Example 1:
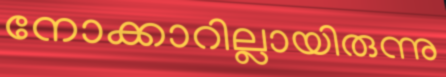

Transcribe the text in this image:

നോക്കാറില്ലായിരുന്നു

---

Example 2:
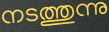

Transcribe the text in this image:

നടത്തുന്നു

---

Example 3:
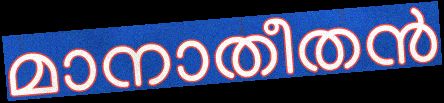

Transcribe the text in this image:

മാനാതീതൻ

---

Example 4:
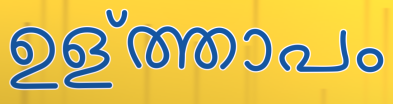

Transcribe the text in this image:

ഉള്ത്താപം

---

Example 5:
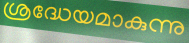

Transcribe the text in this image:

ശ്രദ്ധേയമാകുന്നു